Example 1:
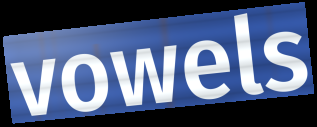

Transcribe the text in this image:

vowels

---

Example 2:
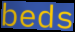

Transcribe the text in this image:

beds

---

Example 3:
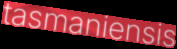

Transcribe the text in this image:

tasmaniensis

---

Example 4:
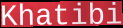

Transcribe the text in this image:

Khatibi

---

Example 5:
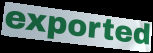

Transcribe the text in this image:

exported